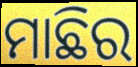
ମାଛିର